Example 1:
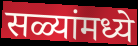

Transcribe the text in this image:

सळ्यांमध्ये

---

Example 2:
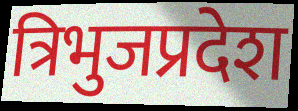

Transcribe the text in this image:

त्रिभुजप्रदेश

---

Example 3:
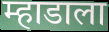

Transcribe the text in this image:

म्हाडाला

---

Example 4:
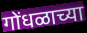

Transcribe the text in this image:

गोंधळाच्या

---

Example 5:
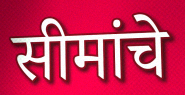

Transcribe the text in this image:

सीमांचे